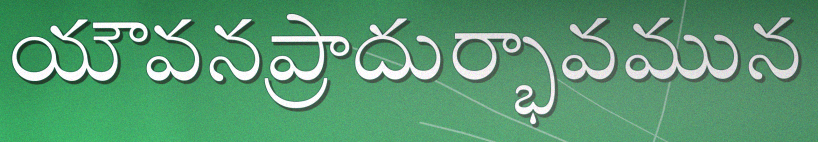
యౌవనప్రాదుర్భావమున